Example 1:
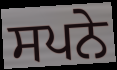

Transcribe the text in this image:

ਸਪਨੇ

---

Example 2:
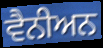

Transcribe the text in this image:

ਵੈਨੀਅਨ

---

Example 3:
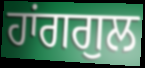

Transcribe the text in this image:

ਹਾਂਗਗੁਲ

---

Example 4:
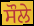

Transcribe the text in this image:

ਸੌਲੇ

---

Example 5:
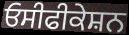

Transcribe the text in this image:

ਓਸੀਫੀਕੇਸ਼ਨ